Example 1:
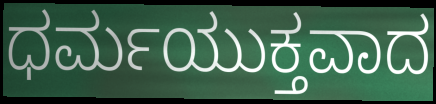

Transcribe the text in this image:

ಧರ್ಮಯುಕ್ತವಾದ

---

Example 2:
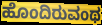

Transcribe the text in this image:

ಹೊಂದಿರುವಂಥ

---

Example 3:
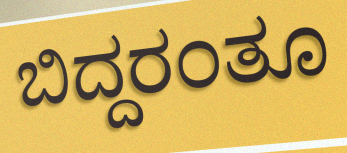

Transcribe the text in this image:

ಬಿದ್ದರಂತೂ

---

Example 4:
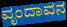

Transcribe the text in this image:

ವೃಂದಾವನ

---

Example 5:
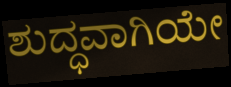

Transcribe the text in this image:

ಶುದ್ಧವಾಗಿಯೇ